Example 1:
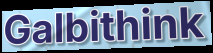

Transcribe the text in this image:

Galbithink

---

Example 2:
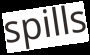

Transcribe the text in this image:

spills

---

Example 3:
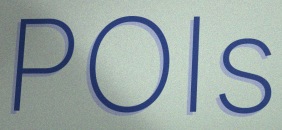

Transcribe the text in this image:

POIs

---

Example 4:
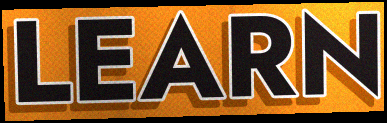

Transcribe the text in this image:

LEARN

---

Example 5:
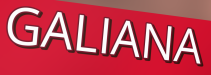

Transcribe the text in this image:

GALIANA